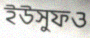
ইউসুফও